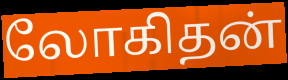
லோகிதன்